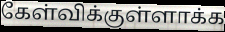
கேள்விக்குள்ளாக்க